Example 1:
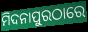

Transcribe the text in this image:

ମିଦନାପୁରଠାରେ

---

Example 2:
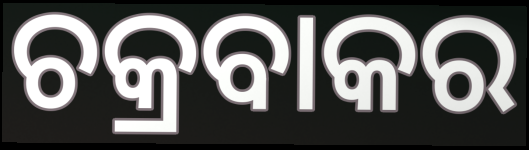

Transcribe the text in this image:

ଚକ୍ରବାକର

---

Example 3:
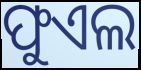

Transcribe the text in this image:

ଫୁଏଲ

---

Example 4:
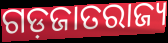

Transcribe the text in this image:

ଗଡ଼ଜାତରାଜ୍ୟ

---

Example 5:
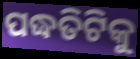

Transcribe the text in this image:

ପଦ୍ଧତିଟିକୁ